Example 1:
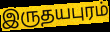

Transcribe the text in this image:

இருதயபுரம்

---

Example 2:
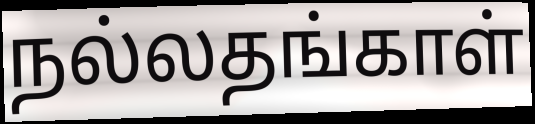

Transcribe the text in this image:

நல்லதங்காள்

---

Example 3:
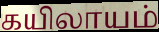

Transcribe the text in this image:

கயிலாயம்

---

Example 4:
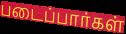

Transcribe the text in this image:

படைப்பார்கள்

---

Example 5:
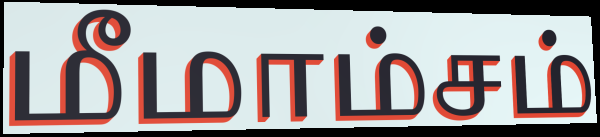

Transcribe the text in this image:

மீமாம்சம்